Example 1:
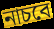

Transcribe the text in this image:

নাচবে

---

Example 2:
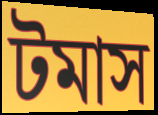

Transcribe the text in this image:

টমাস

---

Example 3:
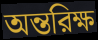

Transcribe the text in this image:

অন্তরিক্ষ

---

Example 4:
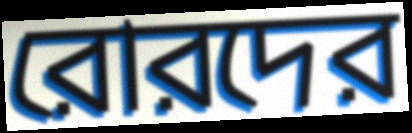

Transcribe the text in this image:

রোরদের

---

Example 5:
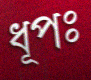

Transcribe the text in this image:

ধূপঃ